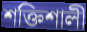
শক্তিশালী